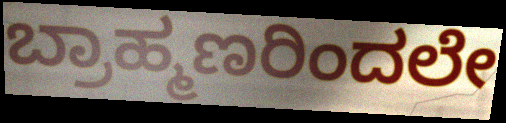
ಬ್ರಾಹ್ಮಣರಿಂದಲೇ